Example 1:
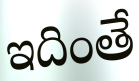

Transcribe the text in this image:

ఇదింతే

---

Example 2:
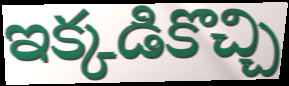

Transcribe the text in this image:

ఇక్కడికొచ్చి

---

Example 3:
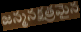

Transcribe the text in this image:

జన్మనక్షత్రమైన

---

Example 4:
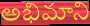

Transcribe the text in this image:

అభిమాని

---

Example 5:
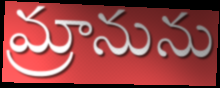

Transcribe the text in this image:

మ్రానును